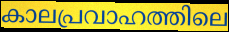
കാലപ്രവാഹത്തിലെ